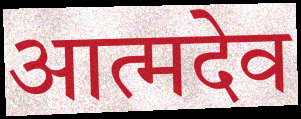
आत्मदेव